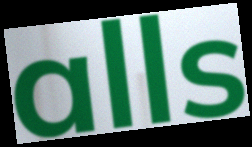
alls